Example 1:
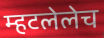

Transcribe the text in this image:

म्हटलेलेच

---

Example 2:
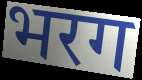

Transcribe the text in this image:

भरग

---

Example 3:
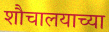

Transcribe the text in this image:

शौचालयाच्या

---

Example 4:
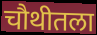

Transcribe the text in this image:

चौथीतला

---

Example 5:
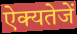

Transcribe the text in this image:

ऐक्यतेजें